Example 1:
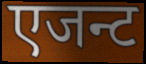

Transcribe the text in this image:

एजन्ट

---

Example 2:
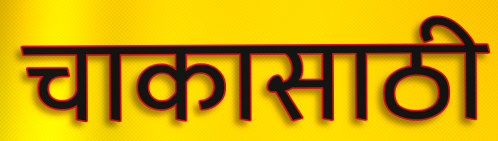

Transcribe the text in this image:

चाकासाठी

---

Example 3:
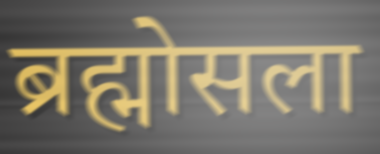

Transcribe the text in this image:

ब्रह्मोसला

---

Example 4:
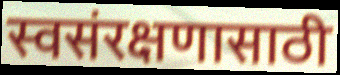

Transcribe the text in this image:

स्वसंरक्षणासाठी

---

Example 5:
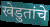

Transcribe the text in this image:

खेडुतांचे